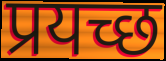
प्रयच्छ